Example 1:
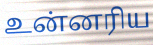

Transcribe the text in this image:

உன்னரிய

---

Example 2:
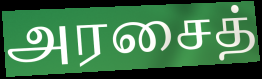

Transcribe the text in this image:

அரசைத்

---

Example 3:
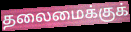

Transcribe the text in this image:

தலைமைக்குக்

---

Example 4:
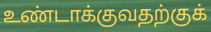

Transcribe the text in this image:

உண்டாக்குவதற்குக்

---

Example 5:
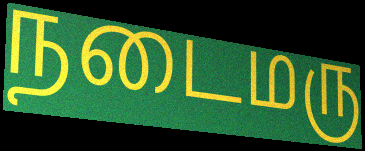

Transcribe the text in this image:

நடைமரு